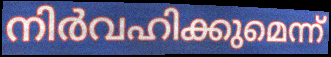
നിർവഹിക്കുമെന്ന്